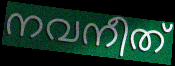
നവനീത്